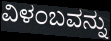
ವಿಳಂಬವನ್ನು